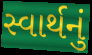
સ્વાર્થનું